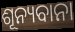
ଶୂନ୍ୟବାନା